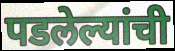
पडलेल्यांची